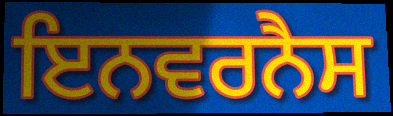
ਇਨਵਰਨੈਸ